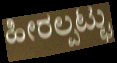
ಹೀರಲ್ಪಟ್ಟು